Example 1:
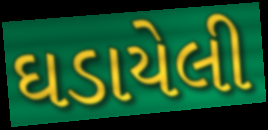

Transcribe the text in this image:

ઘડાયેલી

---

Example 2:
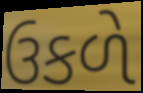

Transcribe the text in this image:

ઉકળે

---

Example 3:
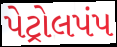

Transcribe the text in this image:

પેટ્રોલપંપ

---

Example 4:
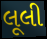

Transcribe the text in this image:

લૂલી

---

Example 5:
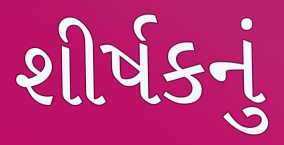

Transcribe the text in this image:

શીર્ષકનું